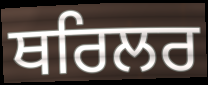
ਥਰਿਲਰ